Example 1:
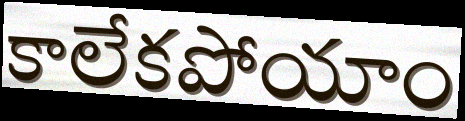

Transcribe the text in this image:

కాలేకపోయాం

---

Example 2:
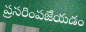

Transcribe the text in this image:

ప్రసరింపజేయడం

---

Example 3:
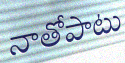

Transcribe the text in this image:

నాతోపాటు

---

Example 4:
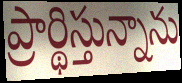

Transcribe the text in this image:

ప్రార్థిస్తున్నాను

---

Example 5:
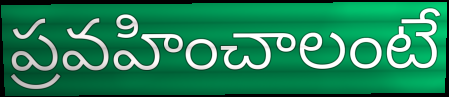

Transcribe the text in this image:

ప్రవహించాలంటే